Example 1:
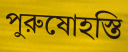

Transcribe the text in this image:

পুরুষোহস্তি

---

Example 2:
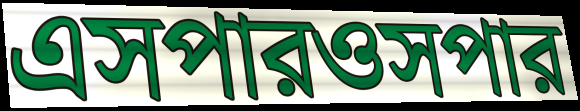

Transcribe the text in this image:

এসপারওসপার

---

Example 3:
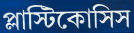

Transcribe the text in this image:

প্লাস্টিকোসিস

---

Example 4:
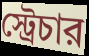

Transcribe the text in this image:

স্ট্রেচার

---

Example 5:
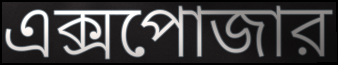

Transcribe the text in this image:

এক্সপোজার